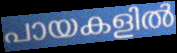
പായകളിൽ